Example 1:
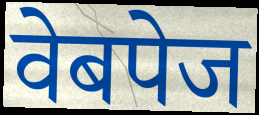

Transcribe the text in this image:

वेबपेज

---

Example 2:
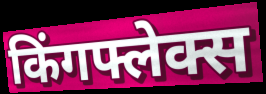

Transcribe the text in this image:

किंगफ्लेक्स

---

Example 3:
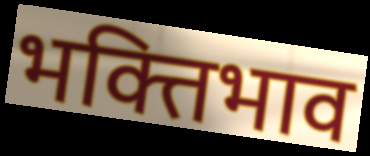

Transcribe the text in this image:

भक्तिभाव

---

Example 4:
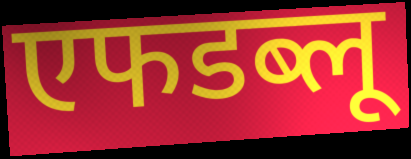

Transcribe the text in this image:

एफडब्लू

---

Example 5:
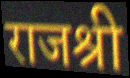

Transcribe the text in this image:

राजश्री